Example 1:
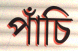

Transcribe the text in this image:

পাঁচি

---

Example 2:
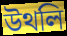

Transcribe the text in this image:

উথলি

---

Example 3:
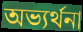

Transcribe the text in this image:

অভ্যৰ্থনা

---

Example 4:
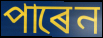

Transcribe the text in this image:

পাৰেন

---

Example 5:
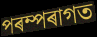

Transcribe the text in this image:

পৰম্পৰাগত